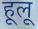
हूलू